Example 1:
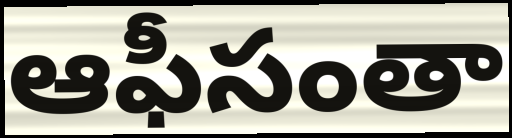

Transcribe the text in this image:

ఆఫీసంతా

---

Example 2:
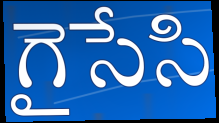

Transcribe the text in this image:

గైసేసి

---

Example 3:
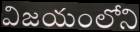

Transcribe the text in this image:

విజయంలోని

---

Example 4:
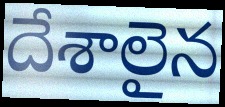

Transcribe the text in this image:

దేశాలైన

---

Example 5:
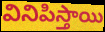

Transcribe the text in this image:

వినిపిస్తాయి